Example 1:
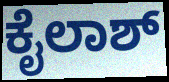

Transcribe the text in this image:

ಕೈಲಾಶ್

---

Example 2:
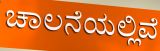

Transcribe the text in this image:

ಚಾಲನೆಯಲ್ಲಿವೆ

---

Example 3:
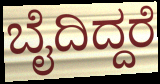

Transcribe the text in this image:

ಬೈದಿದ್ದರೆ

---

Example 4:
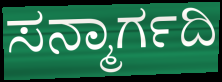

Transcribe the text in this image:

ಸನ್ಮಾರ್ಗದಿ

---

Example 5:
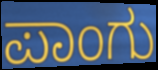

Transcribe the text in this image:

ಪಾಂಗು